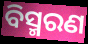
ବିସ୍ମରଣ